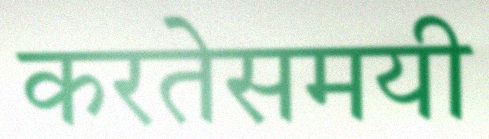
करतेसमयी